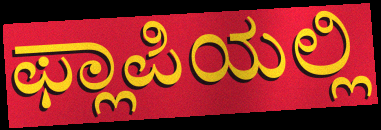
ಫ್ಲಾಪಿಯಲ್ಲಿ